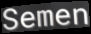
Semen